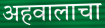
अहवालाचा